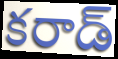
కరాడ్